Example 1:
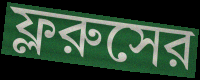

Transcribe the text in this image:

ফ্লরুসের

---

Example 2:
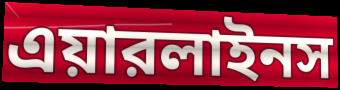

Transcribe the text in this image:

এয়ারলাইনস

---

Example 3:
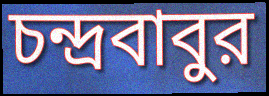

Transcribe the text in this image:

চন্দ্রবাবুর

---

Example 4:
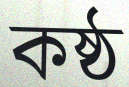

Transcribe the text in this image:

কষ্ঠ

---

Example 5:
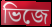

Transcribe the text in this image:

ভিজে